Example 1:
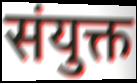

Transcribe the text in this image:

संयुक्त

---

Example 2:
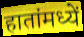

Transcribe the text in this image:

हातांमध्यें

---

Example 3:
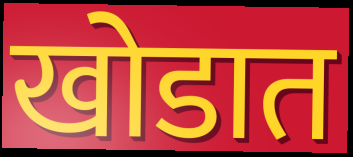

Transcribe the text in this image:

खोडात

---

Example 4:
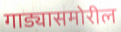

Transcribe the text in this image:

गाड्यासमोरील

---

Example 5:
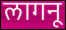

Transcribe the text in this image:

लागनू